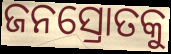
ଜନସ୍ରୋତକୁ